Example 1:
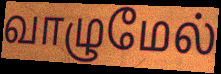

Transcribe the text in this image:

வாழுமேல்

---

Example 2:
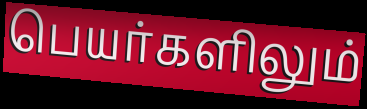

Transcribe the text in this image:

பெயர்களிலும்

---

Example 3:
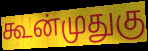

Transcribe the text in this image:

கூன்முதுகு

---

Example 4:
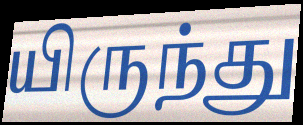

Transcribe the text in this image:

யிருந்து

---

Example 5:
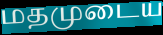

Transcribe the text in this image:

மதமுடைய